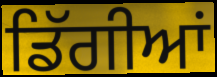
ਡਿੱਗੀਆਂ